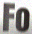
Fo